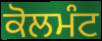
ਕੋਲਮੰਟ